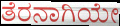
ತೆರನಾಗಿಯೇ